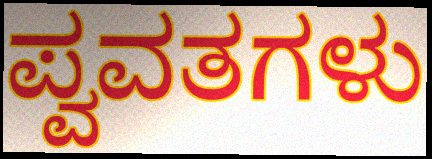
ಪ್ವವತಗಳು